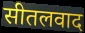
सीतलवाद